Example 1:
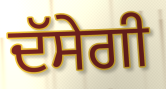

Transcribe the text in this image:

ਦੱਸੇਗੀ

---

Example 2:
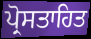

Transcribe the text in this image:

ਪ੍ਰੋਸਤਾਹਿਤ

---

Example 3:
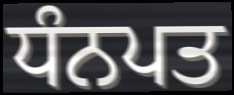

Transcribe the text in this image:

ਧੰਨਪਤ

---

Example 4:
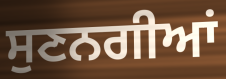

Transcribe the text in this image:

ਸੁਣਨਗੀਆਂ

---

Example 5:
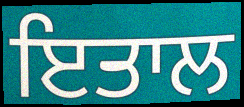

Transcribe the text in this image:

ਇਤਾਲ